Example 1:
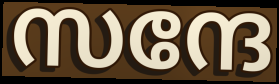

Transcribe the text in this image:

സന്ദേ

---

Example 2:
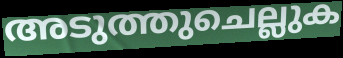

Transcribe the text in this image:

അടുത്തുചെല്ലുക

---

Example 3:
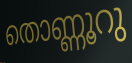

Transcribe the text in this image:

തൊണ്ണൂറു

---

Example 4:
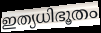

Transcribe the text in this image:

ഇത്യധിഭൂതം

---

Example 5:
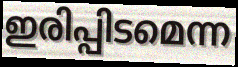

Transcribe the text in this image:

ഇരിപ്പിടമെന്ന